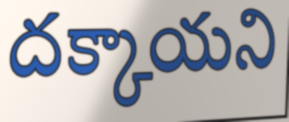
దక్కాయని